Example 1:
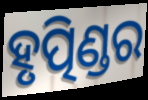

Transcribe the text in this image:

ହୃତ୍ପିଣ୍ଡର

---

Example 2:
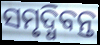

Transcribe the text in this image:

ସମୃଦ୍ଧିବନ୍ତ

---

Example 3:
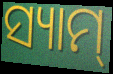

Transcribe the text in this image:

ସ୍ୟାମ୍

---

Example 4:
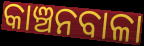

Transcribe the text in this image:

କାଞ୍ଚନବାଳା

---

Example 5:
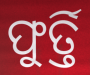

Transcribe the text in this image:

ଫୁର୍ତ୍ତି